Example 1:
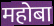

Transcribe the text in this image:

महोबा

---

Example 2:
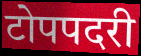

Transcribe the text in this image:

टोपपदरी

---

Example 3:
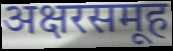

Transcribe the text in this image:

अक्षरसमूह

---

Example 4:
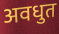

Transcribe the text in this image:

अवधुत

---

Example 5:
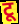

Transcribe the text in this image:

टू